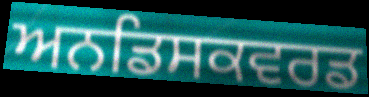
ਅਨਡਿਸਕਵਰਡ